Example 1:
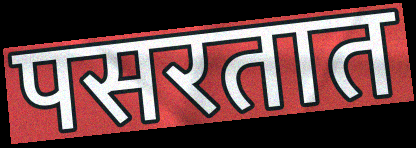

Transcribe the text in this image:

पसरतात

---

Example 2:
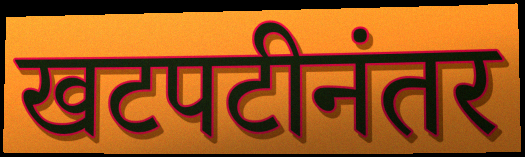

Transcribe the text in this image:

खटपटीनंतर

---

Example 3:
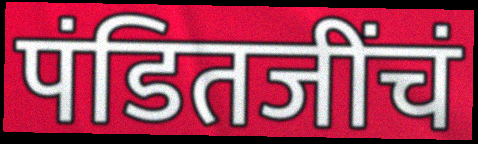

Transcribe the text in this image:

पंडितजींचं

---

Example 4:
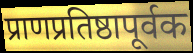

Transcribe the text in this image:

प्राणप्रतिष्ठापूर्वक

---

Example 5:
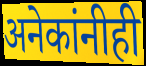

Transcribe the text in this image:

अनेकांनीही